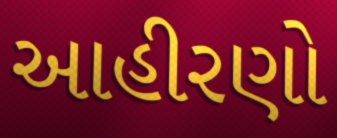
આહીરણો